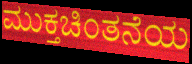
ಮುಕ್ತಚಿಂತನೆಯ